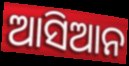
ଆସିଆନ